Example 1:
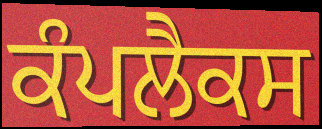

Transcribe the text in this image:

ਕੰਪਲੈਕਸ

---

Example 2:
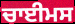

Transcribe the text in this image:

ਚਾਈਮਸ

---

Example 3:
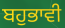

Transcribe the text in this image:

ਬਹੁਭਾਵੀ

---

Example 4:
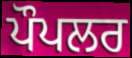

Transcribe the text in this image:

ਪੌਪਲਰ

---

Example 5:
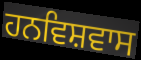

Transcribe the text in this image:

ਹਨਵਿਸ਼ਵਾਸ